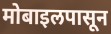
मोबाइलपासून